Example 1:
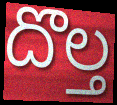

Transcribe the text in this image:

దొల్త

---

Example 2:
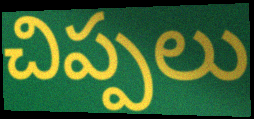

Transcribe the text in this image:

చిప్పలు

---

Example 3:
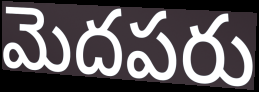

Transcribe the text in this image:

మెదపరు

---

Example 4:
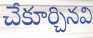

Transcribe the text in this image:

చేకూర్చినవి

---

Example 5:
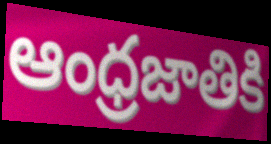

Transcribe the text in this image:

ఆంధ్రజాతికి